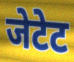
जेटेट